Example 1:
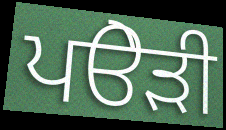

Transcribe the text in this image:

ਪੳੇੜੀ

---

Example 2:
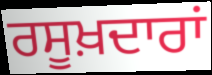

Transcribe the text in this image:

ਰਸੂਖ਼ਦਾਰਾਂ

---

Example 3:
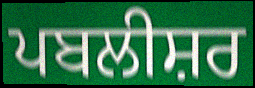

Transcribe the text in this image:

ਪਬਲੀਸ਼ਰ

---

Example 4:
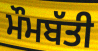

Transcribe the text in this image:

ਮੌਮਬੱਤੀ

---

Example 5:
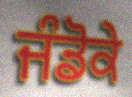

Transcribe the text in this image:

ਜੰਡੋਕੇ